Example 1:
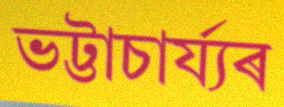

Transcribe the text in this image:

ভট্টাচাৰ্য্যৰ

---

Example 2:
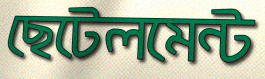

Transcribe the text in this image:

ছেটেলমেন্ট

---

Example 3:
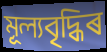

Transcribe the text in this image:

মূল্যবৃদ্ধিৰ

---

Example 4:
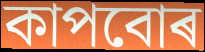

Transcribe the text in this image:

কাপবোৰ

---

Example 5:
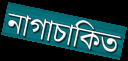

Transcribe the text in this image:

নাগাচাকিত